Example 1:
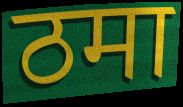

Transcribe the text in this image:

ठमा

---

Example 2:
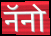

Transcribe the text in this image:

नॅनो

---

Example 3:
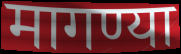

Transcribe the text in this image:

मागण्या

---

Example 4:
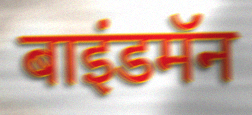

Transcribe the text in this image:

बाइंडमॅन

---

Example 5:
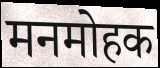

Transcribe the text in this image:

मनमोहक